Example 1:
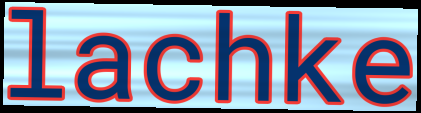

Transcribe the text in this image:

lachke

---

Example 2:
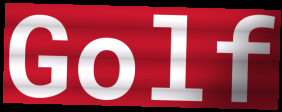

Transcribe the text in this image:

Golf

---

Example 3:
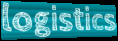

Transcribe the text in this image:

logistics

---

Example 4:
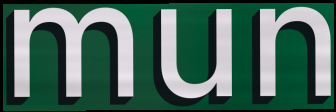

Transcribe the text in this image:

mun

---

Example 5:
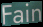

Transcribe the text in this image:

Fain